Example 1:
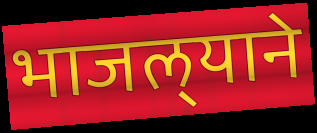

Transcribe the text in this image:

भाजल्याने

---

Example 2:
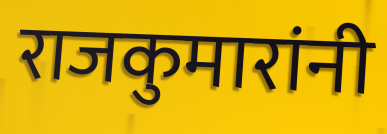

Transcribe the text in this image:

राजकुमारांनी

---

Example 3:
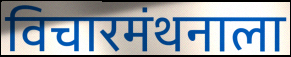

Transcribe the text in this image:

विचारमंथनाला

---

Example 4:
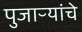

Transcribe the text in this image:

पुजाऱ्यांचे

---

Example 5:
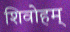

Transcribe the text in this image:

शिवोहम्